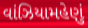
વાંઝિયામહેણું